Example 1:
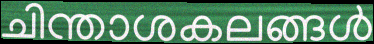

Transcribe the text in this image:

ചിന്താശകലങ്ങൾ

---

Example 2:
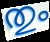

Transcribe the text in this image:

തും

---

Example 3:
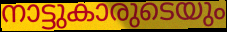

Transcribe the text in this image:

നാട്ടുകാരുടെയും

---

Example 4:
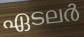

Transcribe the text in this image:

ഏടലർ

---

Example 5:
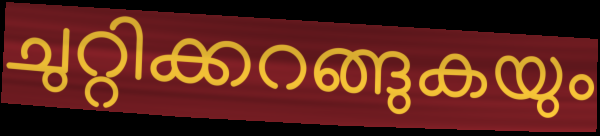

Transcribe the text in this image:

ചുറ്റിക്കറങ്ങുകയും